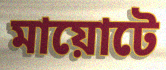
মায়োটে